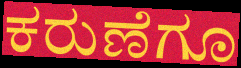
ಕರುಣೆಗೂ